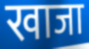
खाजा